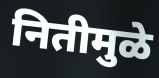
नितीमुळे